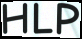
HLP